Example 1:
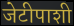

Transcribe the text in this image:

जेटीपाशी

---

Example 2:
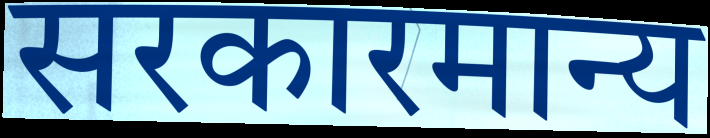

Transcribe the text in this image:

सरकारमान्य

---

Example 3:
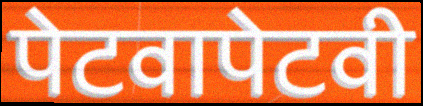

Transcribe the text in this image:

पेटवापेटवी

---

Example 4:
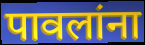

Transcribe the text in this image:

पावलांना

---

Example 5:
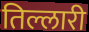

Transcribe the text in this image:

तिल्लारी